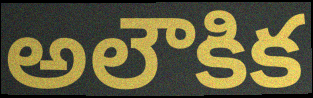
అలౌకిక